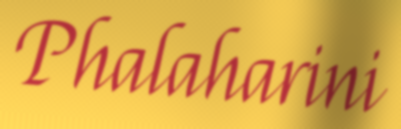
Phalaharini